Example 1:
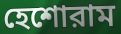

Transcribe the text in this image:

হেশোরাম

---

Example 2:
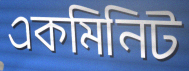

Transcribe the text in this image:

একমিনিট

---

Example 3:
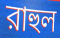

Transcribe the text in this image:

রাহুল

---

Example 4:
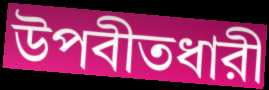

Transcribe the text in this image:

উপবীতধারী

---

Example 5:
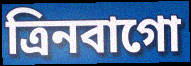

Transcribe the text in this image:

ত্রিনবাগো